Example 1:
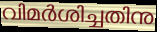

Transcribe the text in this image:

വിമർശിച്ചതിനു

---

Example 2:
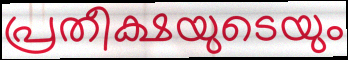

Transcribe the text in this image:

പ്രതീക്ഷയുടെയും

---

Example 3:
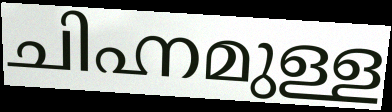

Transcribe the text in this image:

ചിഹ്നമുള്ള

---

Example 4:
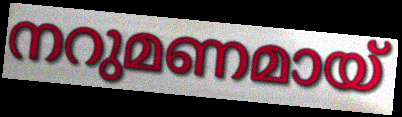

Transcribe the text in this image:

നറുമണമായ്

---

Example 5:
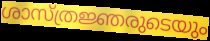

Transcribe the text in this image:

ശാസ്ത്രജ്ഞരുടെയും